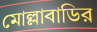
মোল্লাবাডির